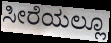
ಸೀರೆಯಲ್ಲೂ